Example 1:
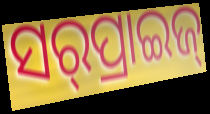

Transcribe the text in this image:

ସର୍‌ପ୍ରାଇଜ୍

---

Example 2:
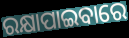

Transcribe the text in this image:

ରକ୍ଷାପାଇବାରେ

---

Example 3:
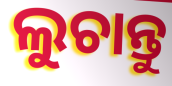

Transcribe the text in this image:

ଲୁଚାନ୍ତୁ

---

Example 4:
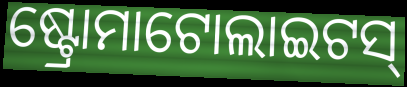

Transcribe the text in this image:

ଷ୍ଟ୍ରୋମାଟୋଲାଇଟସ୍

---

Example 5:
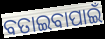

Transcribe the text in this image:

ବତାଇବାପାଇଁ